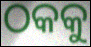
ଠକକୁ